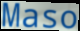
Maso